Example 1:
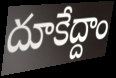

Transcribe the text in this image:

దూకేద్దాం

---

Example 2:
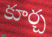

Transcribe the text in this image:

కూర్చ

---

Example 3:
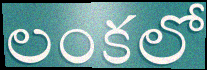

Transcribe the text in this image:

లంకలో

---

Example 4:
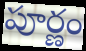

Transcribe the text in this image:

పూర్ణం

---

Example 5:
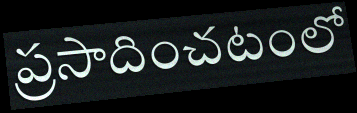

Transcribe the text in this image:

ప్రసాదించటంలో